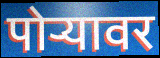
पोर्‍यावर